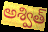
అశ్విత్